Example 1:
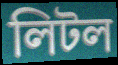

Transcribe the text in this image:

লিটল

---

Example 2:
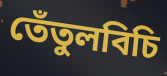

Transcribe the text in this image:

তেঁতুলবিচি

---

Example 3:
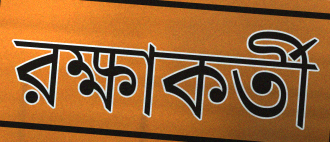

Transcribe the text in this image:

রক্ষাকর্তী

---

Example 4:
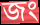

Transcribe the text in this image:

জং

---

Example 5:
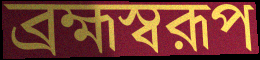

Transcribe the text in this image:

ব্রহ্মস্বরূপ